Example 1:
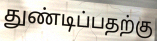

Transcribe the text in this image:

துண்டிப்பதற்கு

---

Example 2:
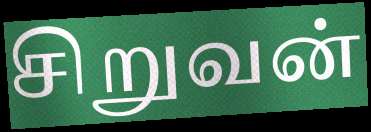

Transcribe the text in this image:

சிறுவன்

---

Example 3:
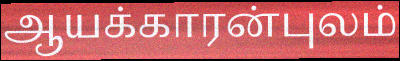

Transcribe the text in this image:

ஆயக்காரன்புலம்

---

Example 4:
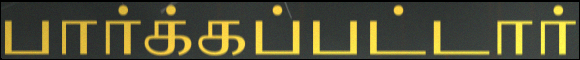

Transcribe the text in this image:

பார்க்கப்பட்டார்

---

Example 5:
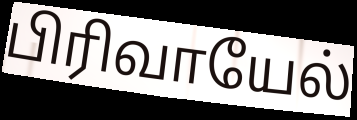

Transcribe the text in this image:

பிரிவாயேல்